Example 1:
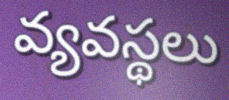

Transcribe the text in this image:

వ్యవస్థలు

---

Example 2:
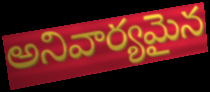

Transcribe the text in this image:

అనివార్యమైన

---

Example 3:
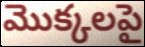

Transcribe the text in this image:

మొక్కలపై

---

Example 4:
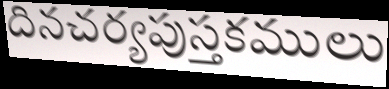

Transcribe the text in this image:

దినచర్యపుస్తకములు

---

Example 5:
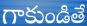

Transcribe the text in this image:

గాకుండితే